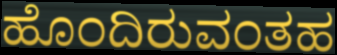
ಹೊಂದಿರುವಂತಹ